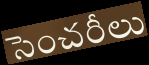
సెంచరీలు